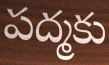
పద్మకు